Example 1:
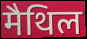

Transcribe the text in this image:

मैथिल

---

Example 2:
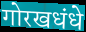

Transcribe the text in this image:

गोरखधंधे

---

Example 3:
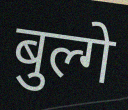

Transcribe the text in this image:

बुल्गे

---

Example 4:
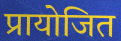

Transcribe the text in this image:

प्रायोजित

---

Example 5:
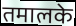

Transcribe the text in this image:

तमालके